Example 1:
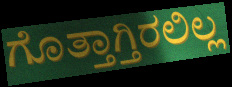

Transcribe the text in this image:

ಗೊತ್ತಾಗ್ತಿರಲಿಲ್ಲ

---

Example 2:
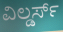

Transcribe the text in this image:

ವಿಲ್ಡರ್ಸ್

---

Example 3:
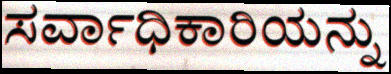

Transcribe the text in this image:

ಸರ್ವಾಧಿಕಾರಿಯನ್ನು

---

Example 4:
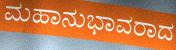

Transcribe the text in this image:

ಮಹಾನುಭಾವರಾದ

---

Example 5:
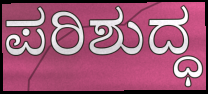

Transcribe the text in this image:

ಪರಿಶುದ್ಧ